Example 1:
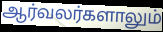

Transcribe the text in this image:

ஆர்வலர்களாலும்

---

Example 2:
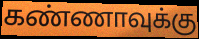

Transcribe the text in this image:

கண்ணாவுக்கு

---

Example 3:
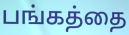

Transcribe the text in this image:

பங்கத்தை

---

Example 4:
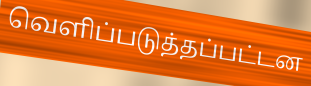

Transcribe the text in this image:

வெளிப்படுத்தப்பட்டன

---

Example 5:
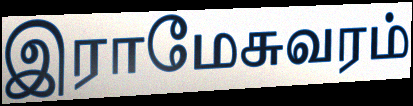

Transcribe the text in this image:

இராமேசுவரம்